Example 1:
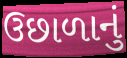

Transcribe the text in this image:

ઉછાળાનું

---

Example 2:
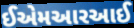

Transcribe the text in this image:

ઈએમઆરઆઈ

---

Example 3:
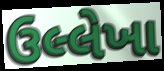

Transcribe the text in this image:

ઉલ્લેખા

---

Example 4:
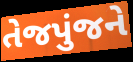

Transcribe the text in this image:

તેજપુંજને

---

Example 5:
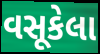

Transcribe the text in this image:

વસૂકેલા